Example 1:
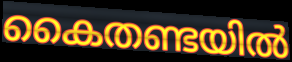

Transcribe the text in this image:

കൈതണ്ടയിൽ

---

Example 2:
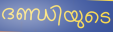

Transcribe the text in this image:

ദണ്ഡിയുടെ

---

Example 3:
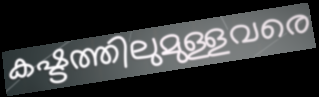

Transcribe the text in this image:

കഷ്ടത്തിലുമുള്ളവരെ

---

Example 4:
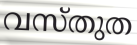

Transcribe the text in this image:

വസ്തുത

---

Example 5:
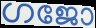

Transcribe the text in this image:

ഗജോ